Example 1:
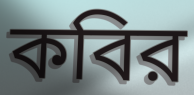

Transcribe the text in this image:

কবির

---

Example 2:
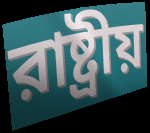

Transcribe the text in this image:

রাষ্ট্রীয়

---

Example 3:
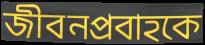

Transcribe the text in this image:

জীবনপ্রবাহকে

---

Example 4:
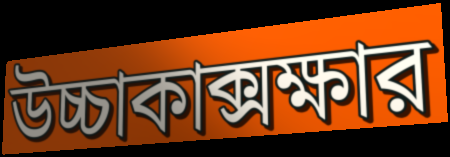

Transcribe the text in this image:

উচ্চাকাক্সক্ষার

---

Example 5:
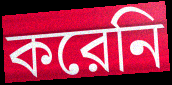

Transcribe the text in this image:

করেনি